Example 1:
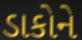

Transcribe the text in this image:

ડાકોને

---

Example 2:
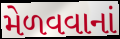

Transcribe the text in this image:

મેળવવાનાં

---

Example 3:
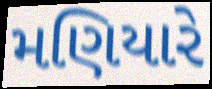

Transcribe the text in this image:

મણિયારે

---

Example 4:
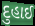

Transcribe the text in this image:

દુહાઈ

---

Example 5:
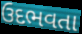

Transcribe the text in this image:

ઉદભવતા